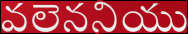
వలెననియు